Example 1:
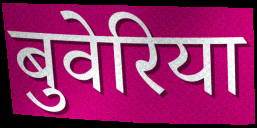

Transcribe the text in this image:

बुवेरिया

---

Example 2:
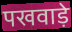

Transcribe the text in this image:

पखवाड़े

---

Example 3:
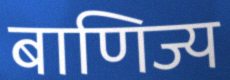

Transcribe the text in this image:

बाणिज्य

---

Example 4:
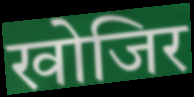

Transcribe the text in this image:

खोजिर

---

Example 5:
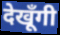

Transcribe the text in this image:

देखूँगी